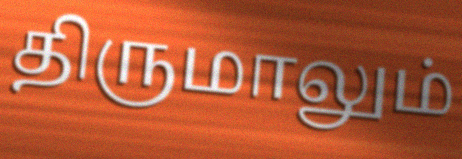
திருமாலும்